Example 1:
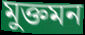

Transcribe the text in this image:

মুক্তমন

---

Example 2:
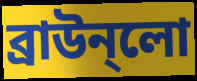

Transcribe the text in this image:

ব্রাউন্লো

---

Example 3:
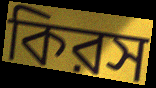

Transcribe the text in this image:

কিরস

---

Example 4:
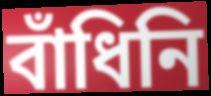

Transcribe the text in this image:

বাঁধিনি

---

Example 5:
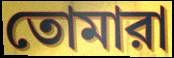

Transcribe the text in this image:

তোমারা